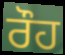
ਰੌਹ